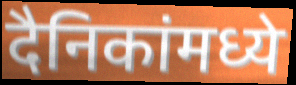
दैनिकांमध्ये